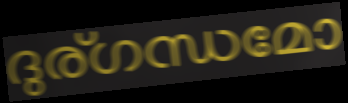
ദുര്ഗന്ധമോ